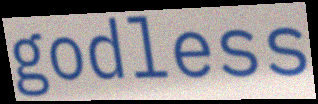
godless